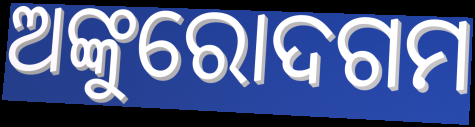
ଅଙ୍କୁରୋଦଗମ